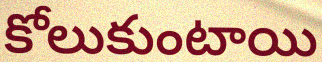
కోలుకుంటాయి